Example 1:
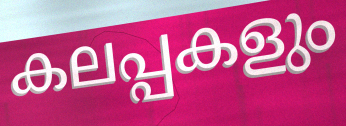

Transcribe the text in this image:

കലപ്പകളും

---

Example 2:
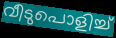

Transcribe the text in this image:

വീടുപൊളിച്ച്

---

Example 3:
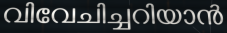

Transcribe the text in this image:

വിവേചിച്ചറിയാൻ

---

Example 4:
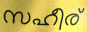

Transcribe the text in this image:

സഹീര്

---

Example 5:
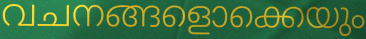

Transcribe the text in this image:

വചനങ്ങളൊക്കെയും